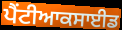
ਪੈਂਟੀਆਕਸਾਈਡ